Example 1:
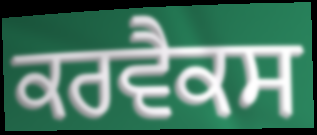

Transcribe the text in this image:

ਕਰਵੈਕਸ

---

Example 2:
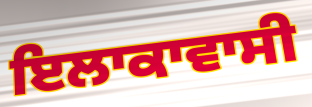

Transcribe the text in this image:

ਇਲਾਕਾਵਾਸੀ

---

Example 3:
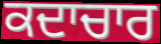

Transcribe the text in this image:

ਕਦਾਚਾਰ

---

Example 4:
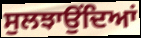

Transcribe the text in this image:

ਸੁਲਝਾਉਂਦਿਆਂ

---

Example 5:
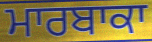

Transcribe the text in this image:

ਮਾਰਬਾਕਾ